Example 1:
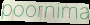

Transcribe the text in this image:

poornima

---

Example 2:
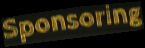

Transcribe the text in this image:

Sponsoring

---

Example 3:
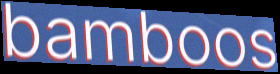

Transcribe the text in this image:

bamboos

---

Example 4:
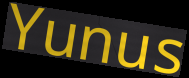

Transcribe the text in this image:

Yunus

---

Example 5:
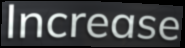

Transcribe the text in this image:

Increase